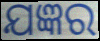
ଯଜ୍ଞର